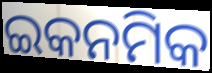
ଇକନମିକ